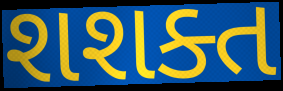
શશક્ત